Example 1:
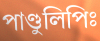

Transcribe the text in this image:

পাণ্ডুলিপিঃ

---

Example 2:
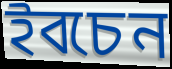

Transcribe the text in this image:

ইবচেন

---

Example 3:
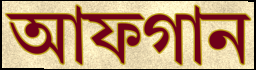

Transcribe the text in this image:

আফগান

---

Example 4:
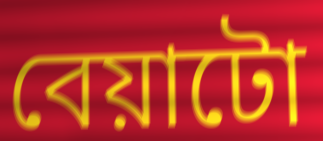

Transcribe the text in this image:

বেয়াটো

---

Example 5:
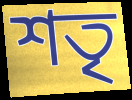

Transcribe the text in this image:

শতৃ